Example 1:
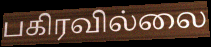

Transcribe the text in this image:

பகிரவில்லை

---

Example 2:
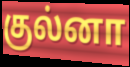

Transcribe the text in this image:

குல்னா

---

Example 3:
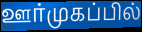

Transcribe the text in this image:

ஊர்முகப்பில்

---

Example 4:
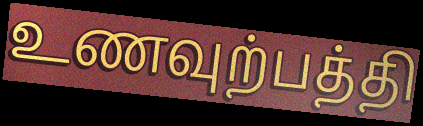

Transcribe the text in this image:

உணவுற்பத்தி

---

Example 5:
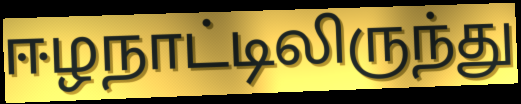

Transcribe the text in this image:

ஈழநாட்டிலிருந்து